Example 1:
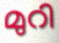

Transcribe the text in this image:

മുറി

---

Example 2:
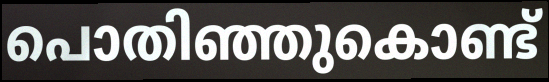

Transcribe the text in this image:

പൊതിഞ്ഞുകൊണ്ട്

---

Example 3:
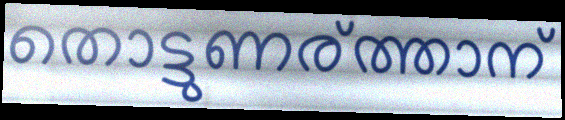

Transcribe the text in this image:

തൊട്ടുണര്ത്താന്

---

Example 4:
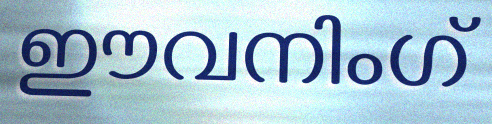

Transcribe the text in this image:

ഈവനിംഗ്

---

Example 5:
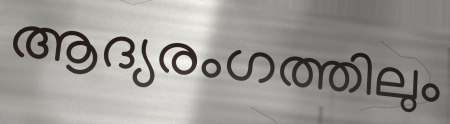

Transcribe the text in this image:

ആദ്യരംഗത്തിലും